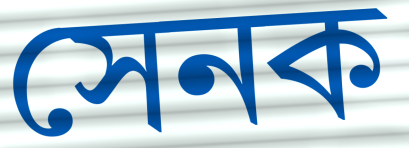
সেনক